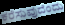
ಕರೆಸುವುದೆಂದು